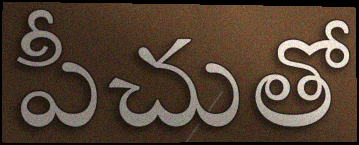
పీచుతో